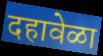
दहावेळा